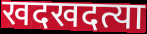
खदखदत्या